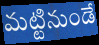
మట్టినుండే